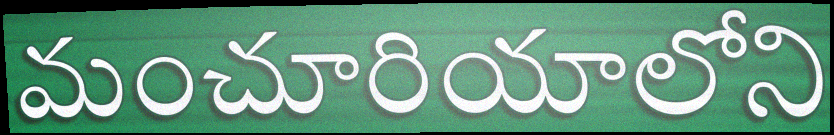
మంచూరియాలోని